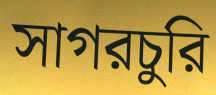
সাগরচুরি